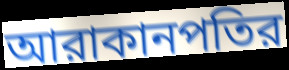
আরাকানপতির